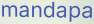
mandapa